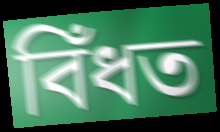
বিঁধত